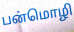
பன்மொழி